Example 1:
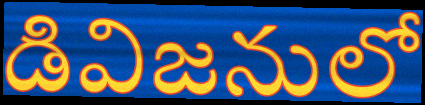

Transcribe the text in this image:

డివిజనులో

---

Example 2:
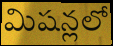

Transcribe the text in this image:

మిషన్లలో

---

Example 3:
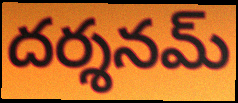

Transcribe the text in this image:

దర్శనమ్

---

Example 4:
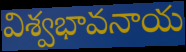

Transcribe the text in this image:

విశ్వభావనాయ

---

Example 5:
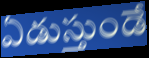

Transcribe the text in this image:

ఏడుస్తుండే